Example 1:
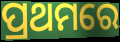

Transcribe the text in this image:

ପ୍ରଥମରେ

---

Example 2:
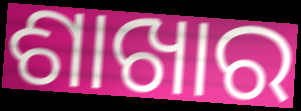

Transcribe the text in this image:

ଶାଖାର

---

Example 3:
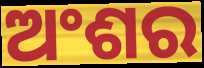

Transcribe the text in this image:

ଅଂଶର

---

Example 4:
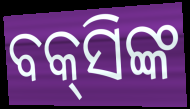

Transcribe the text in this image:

ବକ୍‌ସିଙ୍କ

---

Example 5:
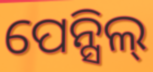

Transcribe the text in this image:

ପେନ୍ସିଲ୍